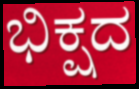
ಭಿಕ್ಷದ